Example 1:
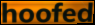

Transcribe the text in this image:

hoofed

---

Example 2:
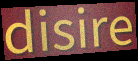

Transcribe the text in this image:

disire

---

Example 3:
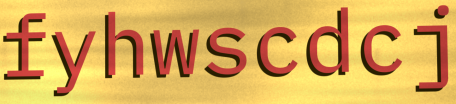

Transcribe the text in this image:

fyhwscdcj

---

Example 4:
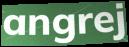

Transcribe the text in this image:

angrej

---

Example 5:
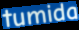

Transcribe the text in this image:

tumida